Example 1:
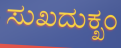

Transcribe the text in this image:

ಸುಖದುಕ್ಖಂ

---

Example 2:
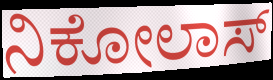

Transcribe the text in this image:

ನಿಕೋಲಾಸ್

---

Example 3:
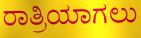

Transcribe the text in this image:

ರಾತ್ರಿಯಾಗಲು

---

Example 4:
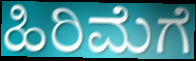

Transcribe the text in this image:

ಹಿರಿಮೆಗೆ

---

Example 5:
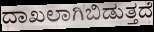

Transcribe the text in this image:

ದಾಖಲಾಗಿಬಿಡುತ್ತದೆ